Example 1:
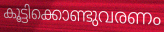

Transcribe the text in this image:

കൂട്ടിക്കൊണ്ടുവരണം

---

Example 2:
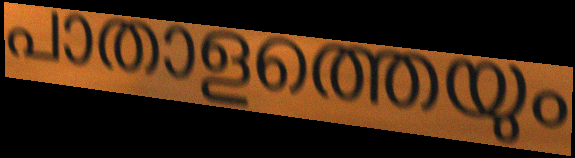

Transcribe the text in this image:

പാതാളത്തെയും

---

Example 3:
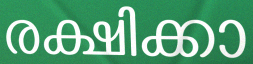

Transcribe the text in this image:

രക്ഷിക്കാ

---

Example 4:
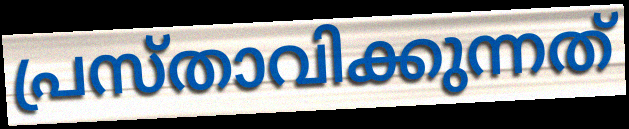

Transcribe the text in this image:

പ്രസ്താവിക്കുന്നത്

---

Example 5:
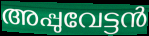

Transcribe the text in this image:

അപ്പുവേട്ടൻ